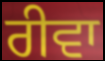
ਰੀਵਾ